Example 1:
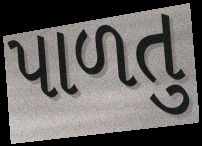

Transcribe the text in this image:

પાળતુ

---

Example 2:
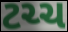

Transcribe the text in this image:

ટચ્ચ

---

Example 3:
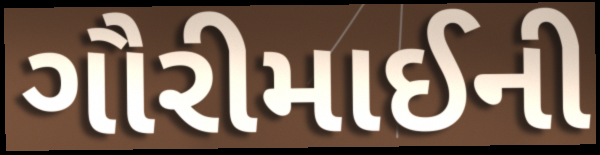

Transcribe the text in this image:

ગૌરીમાઈની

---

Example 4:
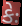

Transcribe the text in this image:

કેઃ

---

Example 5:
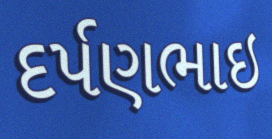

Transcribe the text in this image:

દર્પણભાઇ